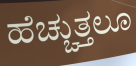
ಹೆಚ್ಚುತ್ತಲೂ